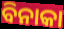
ବିନାକା